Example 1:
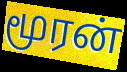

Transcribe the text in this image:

மூரன்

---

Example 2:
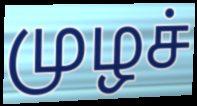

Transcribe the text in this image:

முழச்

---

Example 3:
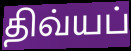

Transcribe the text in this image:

திவ்யப்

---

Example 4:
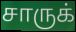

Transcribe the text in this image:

சாருக்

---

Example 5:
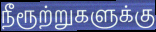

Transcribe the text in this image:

நீரூற்றுகளுக்கு